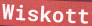
Wiskott